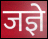
जज्ञे